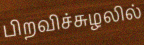
பிறவிச்சுழலில்